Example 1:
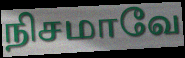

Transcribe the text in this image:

நிசமாவே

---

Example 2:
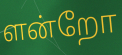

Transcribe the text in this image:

ளன்றோ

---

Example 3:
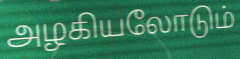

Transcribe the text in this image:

அழகியலோடும்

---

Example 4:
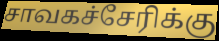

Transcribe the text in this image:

சாவகச்சேரிக்கு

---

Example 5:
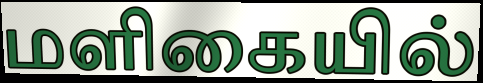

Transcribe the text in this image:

மளிகையில்